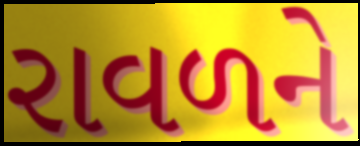
રાવળને